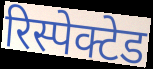
रिस्पेक्टेड